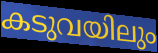
കടുവയിലും